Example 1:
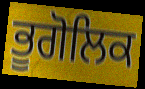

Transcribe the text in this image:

ਭੂਗੋਲਿਕ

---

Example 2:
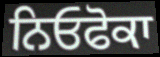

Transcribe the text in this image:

ਨਿਓਫੋਕਾ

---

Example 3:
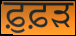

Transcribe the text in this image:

ਫ਼ੁਫ਼ੜ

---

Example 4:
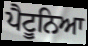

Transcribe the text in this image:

ਪੈਟੂਨਿਆ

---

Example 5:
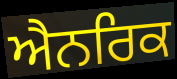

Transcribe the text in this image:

ਐਨਰਿਕ